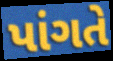
પાંગતે